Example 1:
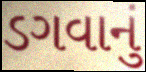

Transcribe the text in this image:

ડગવાનું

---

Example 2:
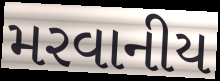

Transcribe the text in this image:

મરવાનીય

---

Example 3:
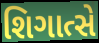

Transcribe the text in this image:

શિગાત્સે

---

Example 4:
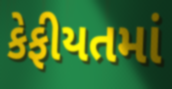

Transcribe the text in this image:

કેફીયતમાં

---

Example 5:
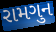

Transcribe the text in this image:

રામગુન